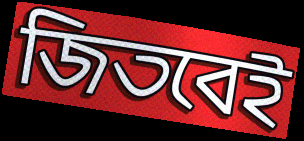
জিতবেই